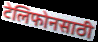
टेलिफोनसाठी